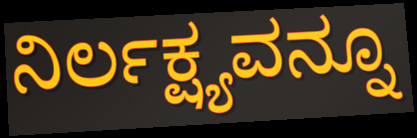
ನಿರ್ಲಕ್ಷ್ಯವನ್ನೂ